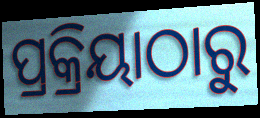
ପ୍ରକ୍ରିୟାଠାରୁ